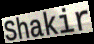
Shakir